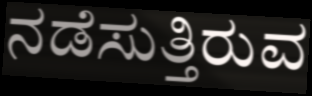
ನಡೆಸುತ್ತಿರುವ